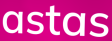
astas